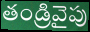
తండ్రివైపు